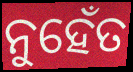
ନୁହେଁତ